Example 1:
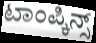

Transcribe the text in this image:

ಟಾಂಪ್ಕಿನ್ಸ್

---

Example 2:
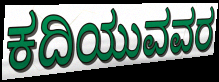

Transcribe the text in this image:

ಕದಿಯುವವರ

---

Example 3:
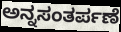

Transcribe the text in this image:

ಅನ್ನಸಂತರ್ಪಣೆ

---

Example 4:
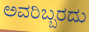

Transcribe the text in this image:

ಅವರಿಬ್ಬರದು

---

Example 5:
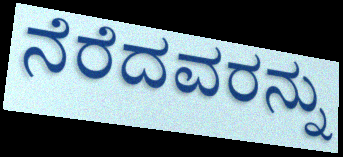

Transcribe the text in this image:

ನೆರೆದವರನ್ನು